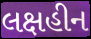
લક્ષહીન